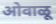
ओवाळू